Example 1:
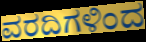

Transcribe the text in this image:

ವರದಿಗಳಿಂದ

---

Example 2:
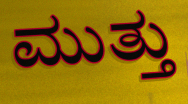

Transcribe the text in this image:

ಮುತ್ತು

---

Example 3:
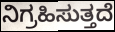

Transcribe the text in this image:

ನಿಗ್ರಹಿಸುತ್ತದೆ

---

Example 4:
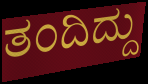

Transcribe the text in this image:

ತಂದಿದ್ದು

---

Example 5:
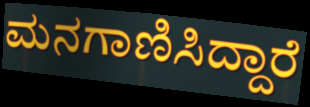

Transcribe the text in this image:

ಮನಗಾಣಿಸಿದ್ದಾರೆ